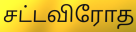
சட்டவிரோத